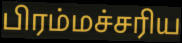
பிரம்மச்சரிய